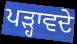
ਪੜ੍ਹਾਵਦੇ